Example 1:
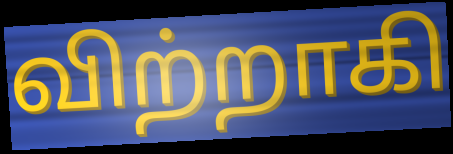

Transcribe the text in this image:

விற்றாகி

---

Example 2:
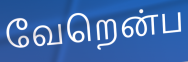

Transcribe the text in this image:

வேறென்ப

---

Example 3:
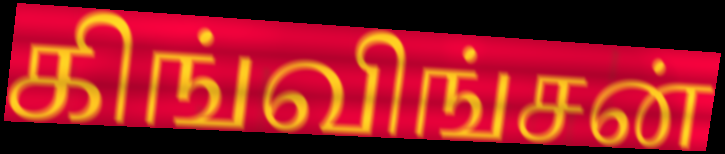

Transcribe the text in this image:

கிங்விங்சன்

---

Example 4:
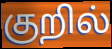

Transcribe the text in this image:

குறில்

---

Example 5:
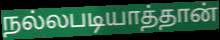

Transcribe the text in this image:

நல்லபடியாத்தான்